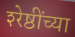
श्रेष्ठींच्या